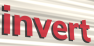
invert